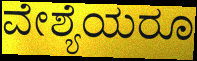
ವೇಶ್ಯೆಯರೂ